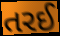
તરઈ